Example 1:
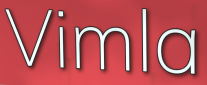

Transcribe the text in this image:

Vimla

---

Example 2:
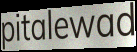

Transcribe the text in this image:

pitalewad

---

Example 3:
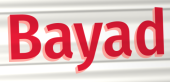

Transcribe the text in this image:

Bayad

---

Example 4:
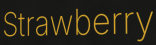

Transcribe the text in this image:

Strawberry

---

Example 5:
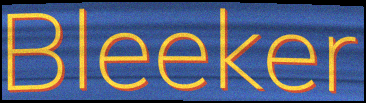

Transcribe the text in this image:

Bleeker